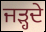
ਜੜ੍ਹਦੇ